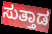
ಸುತ್ತಾಡ